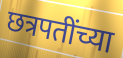
छत्रपतींच्या